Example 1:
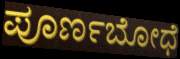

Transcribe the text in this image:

ಪೂರ್ಣಬೋಧೆ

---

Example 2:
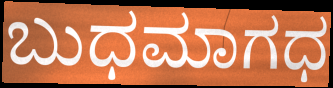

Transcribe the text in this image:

ಬುಧಮಾಗಧ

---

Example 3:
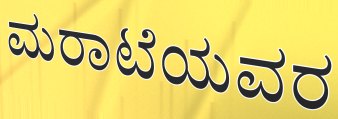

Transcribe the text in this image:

ಮರಾಟೆಯವರ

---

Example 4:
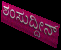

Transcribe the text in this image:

ಶಂಸುದ್ದೀನ್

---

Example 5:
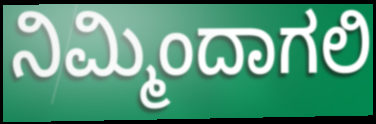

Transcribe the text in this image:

ನಿಮ್ಮಿಂದಾಗಲಿ